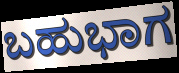
ಬಹುಭಾಗ